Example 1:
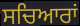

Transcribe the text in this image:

ਸਚਿਆਰਾਂ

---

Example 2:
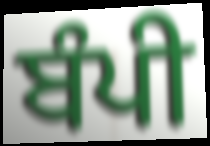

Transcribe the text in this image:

ਬੰਪੀ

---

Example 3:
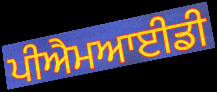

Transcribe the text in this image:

ਪੀਐਮਆਈਡੀ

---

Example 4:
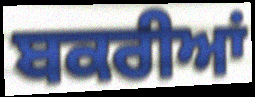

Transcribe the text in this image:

ਬਕਰੀਆਂ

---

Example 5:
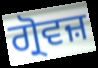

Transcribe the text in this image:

ਗ੍ਰੋਵਜ਼